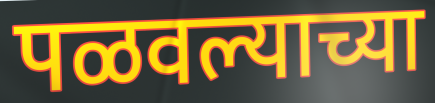
पळवल्याच्या